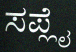
ಸಪ್ಲೈ